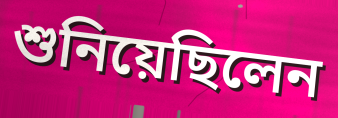
শুনিয়েছিলেন